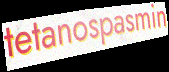
tetanospasmin